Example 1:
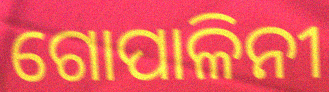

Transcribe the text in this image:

ଗୋପାଳିନୀ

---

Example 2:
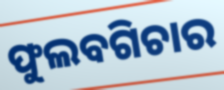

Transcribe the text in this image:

ଫୁଲବଗିଚାର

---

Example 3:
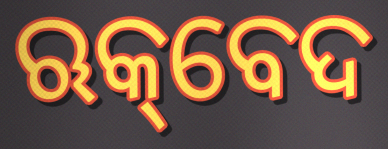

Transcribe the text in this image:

ଋକ୍‌ବେଦ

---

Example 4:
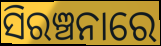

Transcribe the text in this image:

ସିରଞ୍ଚନାରେ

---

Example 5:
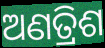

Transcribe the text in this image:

ଅଣତ୍ରିଶ